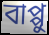
বাপ্পু